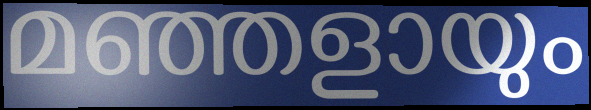
മഞ്ഞളായും